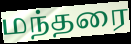
மந்தரை